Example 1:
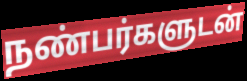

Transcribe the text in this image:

நண்பர்களுடன்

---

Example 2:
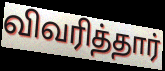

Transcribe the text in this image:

விவரித்தார்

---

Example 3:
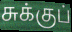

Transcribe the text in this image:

சுக்குப்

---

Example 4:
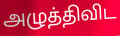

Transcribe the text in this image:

அழுத்திவிட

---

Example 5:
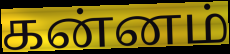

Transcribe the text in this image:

கன்னம்